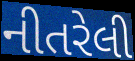
નીતરેલી